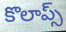
కొలాప్స్